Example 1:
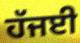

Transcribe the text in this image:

ਹੱਜਈ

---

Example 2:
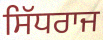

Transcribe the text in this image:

ਸਿੱਧਰਾਜ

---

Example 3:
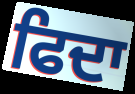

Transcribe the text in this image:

ਫਿਦਾ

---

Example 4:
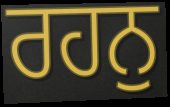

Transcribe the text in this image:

ਰਹਨੁ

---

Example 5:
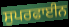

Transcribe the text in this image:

ਸੁਪਰਫਾਈਨ